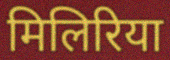
मिलिरिया